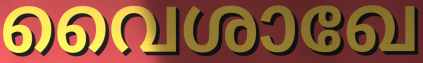
വൈശാഖേ